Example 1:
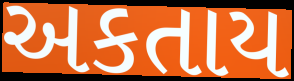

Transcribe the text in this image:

અકતાય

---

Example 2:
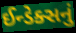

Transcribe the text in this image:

ઈન્ડેક્સનું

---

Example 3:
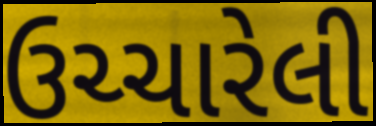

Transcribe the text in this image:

ઉચ્ચારેલી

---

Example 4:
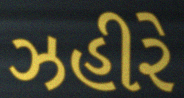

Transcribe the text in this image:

ઝહીરે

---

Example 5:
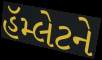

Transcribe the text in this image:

હૅમ્લેટને